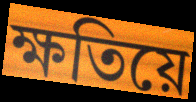
ক্ষতিয়ে